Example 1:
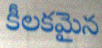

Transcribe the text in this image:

కీలకమైన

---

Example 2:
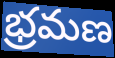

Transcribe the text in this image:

భ్రమణ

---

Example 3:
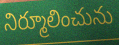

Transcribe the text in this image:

నిర్మూలించును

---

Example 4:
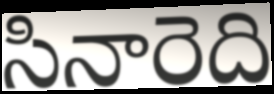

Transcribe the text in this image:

సినారెది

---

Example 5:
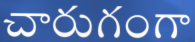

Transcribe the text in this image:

చారుగంగా